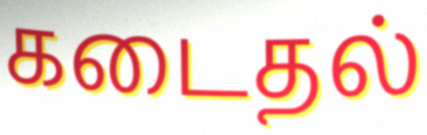
கடைதல்